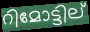
റിമോട്ടില്